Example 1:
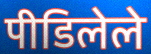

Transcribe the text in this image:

पीडिलेले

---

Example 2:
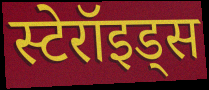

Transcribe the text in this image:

स्टेरॉइड्स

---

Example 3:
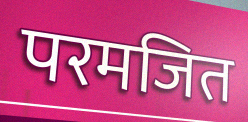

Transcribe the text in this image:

परमजित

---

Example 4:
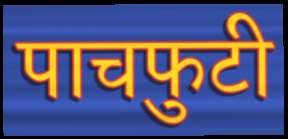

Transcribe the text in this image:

पाचफुटी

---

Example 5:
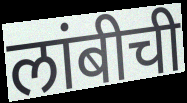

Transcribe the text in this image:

लांबीची